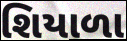
શિયાળા